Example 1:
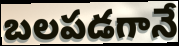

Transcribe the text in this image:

బలపడగానే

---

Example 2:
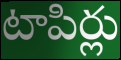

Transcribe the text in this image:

టాపిర్లు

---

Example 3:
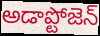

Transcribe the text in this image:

అడాప్టోజెన్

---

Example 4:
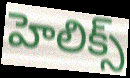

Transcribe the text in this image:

హెలిక్స్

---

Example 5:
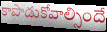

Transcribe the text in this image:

కాపాడుకోవాల్సిందే